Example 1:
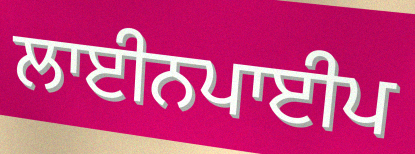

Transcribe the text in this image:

ਲਾਈਨਪਾਈਪ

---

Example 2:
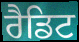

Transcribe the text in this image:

ਰੈਡਿਟ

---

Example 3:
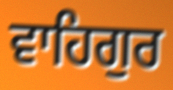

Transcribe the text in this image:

ਵਾਹਿਗੁਰ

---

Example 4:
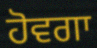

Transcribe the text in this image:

ਹੋਵਗਾ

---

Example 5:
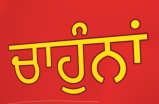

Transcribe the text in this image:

ਚਾਹੁੰਨਾਂ